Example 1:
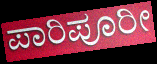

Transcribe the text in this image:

ಪಾರಿಪೂರೀ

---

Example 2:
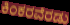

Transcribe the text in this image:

ಕಿಂಕರವೆರಡು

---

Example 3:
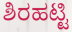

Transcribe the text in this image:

ಶಿರಹಟ್ಟಿ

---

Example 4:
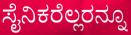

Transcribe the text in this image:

ಸೈನಿಕರೆಲ್ಲರನ್ನೂ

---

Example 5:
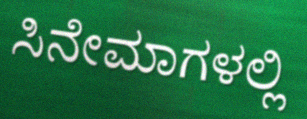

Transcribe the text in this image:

ಸಿನೇಮಾಗಳಲ್ಲಿ